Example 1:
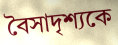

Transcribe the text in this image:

বৈসাদৃশ্যকে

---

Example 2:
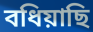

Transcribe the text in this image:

বধিয়াছি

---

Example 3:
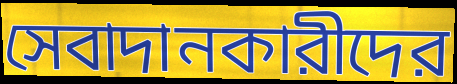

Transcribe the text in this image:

সেবাদানকারীদের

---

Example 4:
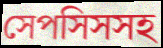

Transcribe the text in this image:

সেপসিসসহ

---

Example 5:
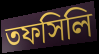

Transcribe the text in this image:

তফসিলি